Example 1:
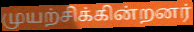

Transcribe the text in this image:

முயற்சிக்கின்றனர்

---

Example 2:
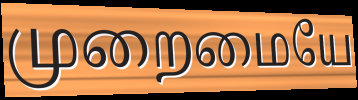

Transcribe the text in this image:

முறைமையே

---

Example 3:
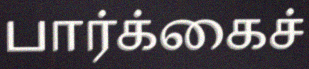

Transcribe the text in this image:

பார்க்கைச்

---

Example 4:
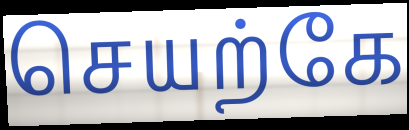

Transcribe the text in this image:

செயற்கே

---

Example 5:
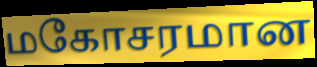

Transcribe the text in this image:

மகோசரமான